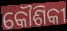
କୌଶିକୀ